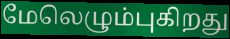
மேலெழும்புகிறது